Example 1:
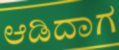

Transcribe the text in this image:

ಆಡಿದಾಗ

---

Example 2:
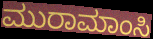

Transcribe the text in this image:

ಮುರಾಮಾಂಸಿ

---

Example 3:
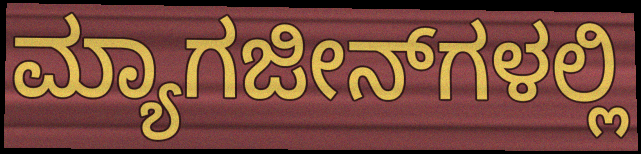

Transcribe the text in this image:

ಮ್ಯಾಗಜೀನ್‌ಗಳಲ್ಲಿ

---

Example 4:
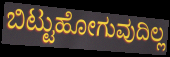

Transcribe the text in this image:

ಬಿಟ್ಟುಹೋಗುವುದಿಲ್ಲ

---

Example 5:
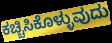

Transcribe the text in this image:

ಕಚ್ಚಿಸಿಕೊಳ್ಳುವುದು